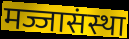
मज्जासंस्था